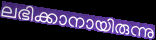
ലഭിക്കാനായിരുന്നു